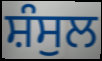
ਸ਼ੰਸੁਲ